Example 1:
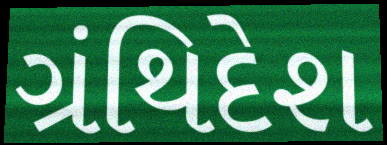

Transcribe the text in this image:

ગ્રંથિદેશ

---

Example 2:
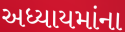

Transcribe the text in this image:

અધ્યાયમાંના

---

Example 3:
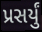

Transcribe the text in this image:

પ્રસર્યું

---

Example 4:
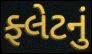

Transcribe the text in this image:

ફ્લેટનું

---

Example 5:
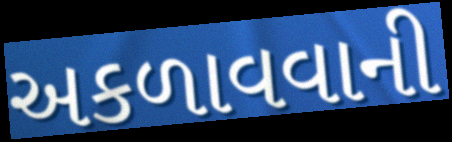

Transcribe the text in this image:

અકળાવવાની